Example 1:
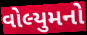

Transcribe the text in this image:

વોલ્યુમનો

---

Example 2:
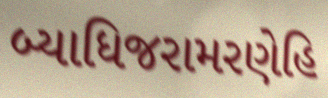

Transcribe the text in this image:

બ્યાધિજરામરણેહિ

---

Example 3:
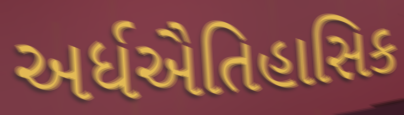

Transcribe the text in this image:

અર્ધઐતિહાસિક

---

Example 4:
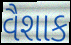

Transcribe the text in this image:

વૈશાક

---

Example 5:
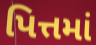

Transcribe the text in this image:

પિત્તમાં